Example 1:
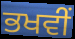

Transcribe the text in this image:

ਭਖਵੀਂ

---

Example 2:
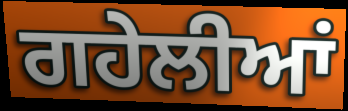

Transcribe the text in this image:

ਗਹੇਲੀਆਂ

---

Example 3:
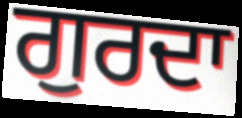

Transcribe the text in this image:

ਗੁਰਦਾ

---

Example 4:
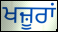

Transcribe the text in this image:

ਖਜ਼ੂਰਾਂ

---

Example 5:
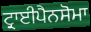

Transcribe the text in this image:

ਟ੍ਰਾਈਪੈਨਸੋਮਾ